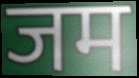
जम